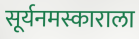
सूर्यनमस्काराला